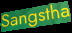
Sangstha